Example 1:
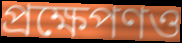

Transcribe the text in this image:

প্রক্ষেপণও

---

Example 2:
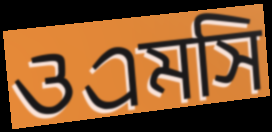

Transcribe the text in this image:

ওএমসি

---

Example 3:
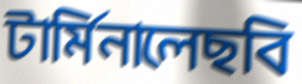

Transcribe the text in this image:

টার্মিনালেছবি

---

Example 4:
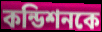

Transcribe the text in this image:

কন্ডিশনকে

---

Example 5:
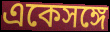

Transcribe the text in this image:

একেসঙ্গে